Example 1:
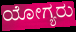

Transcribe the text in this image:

ಯೋಗ್ಯರು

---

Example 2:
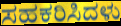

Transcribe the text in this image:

ಸಹಕರಿಸಿದಳು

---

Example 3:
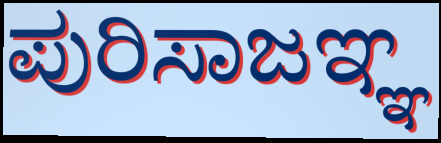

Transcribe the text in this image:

ಪುರಿಸಾಜಞ್ಞ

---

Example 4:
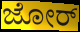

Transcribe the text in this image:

ಜೋರ್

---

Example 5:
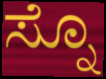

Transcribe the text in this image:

ಸ್ನೊ